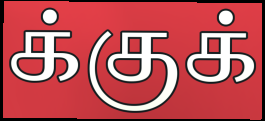
க்குக்